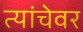
त्यांचेवर